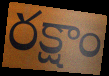
రక్షాం